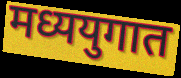
मध्ययुगात